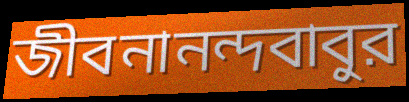
জীবনানন্দবাবুর